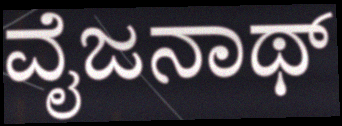
ವೈಜನಾಥ್